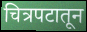
चित्रपटातून